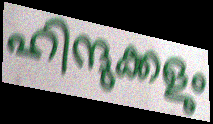
ഹിന്ദുക്കളും